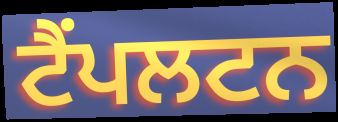
ਟੈਂਪਲਟਨ